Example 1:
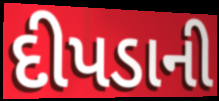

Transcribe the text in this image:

દીપડાની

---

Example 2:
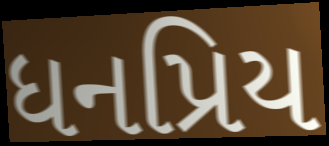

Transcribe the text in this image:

ધનપ્રિય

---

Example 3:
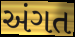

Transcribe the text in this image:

અંગત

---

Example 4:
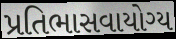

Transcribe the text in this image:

પ્રતિભાસવાયોગ્ય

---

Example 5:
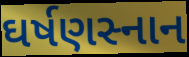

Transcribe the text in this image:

ઘર્ષણસ્નાન